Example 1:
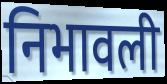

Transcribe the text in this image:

निभावली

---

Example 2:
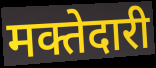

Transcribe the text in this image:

मक्तेदारी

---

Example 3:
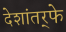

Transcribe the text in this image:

देशांतर्फे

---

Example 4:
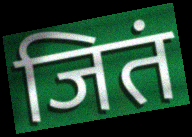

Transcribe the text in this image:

जितं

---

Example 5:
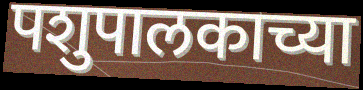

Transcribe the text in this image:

पशुपालकाच्या